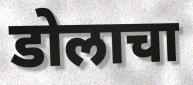
डोलाचा